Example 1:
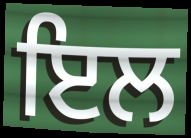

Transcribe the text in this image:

ਇਲ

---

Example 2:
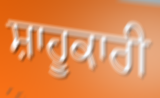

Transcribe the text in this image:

ਸ਼ਾਹੂਕਾਰੀ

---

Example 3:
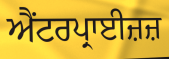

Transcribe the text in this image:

ਐਂਟਰਪ੍ਰਾਈਜ਼ਜ਼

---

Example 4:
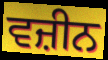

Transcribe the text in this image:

ਵਜ਼ੀਨ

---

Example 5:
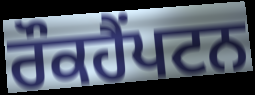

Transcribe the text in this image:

ਰੌਕਹੈਂਪਟਨ